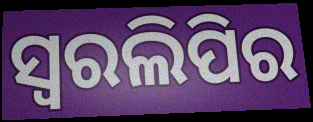
ସ୍ୱରଲିପିର